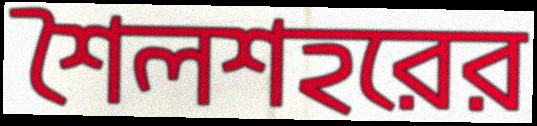
শৈলশহরের